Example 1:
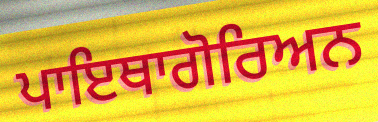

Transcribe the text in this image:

ਪਾਇਥਾਗੋਰਿਅਨ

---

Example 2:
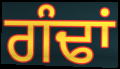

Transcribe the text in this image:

ਗੰਢਾਂ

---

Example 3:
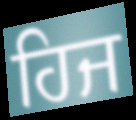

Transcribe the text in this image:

ਹਿਜ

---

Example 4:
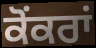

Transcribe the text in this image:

ਕੋਂਕਰਾਂ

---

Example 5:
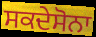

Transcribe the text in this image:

ਸਕਦੇਸੋਨਾ